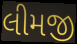
લીમજી